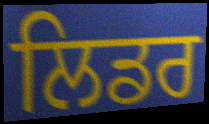
ਲਿਡਰ